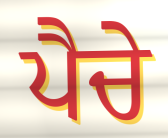
ਪੈਚੇ